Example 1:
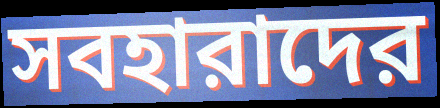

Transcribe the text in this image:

সবহারাদের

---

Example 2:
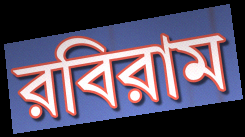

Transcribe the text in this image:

রবিরাম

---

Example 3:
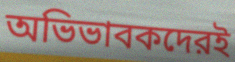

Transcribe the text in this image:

অভিভাবকদেরই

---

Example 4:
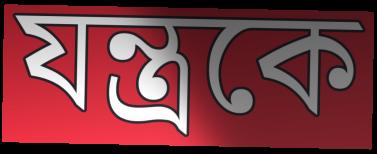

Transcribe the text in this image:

যন্ত্রকে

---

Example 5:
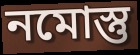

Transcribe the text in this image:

নমোস্তু